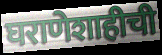
घराणेशाहीची